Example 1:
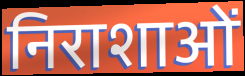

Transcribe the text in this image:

निराशाओं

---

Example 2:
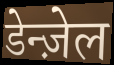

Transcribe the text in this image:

डेन्ज़ेल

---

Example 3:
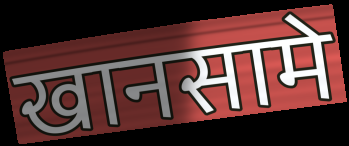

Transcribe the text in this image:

खानसामे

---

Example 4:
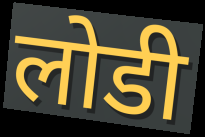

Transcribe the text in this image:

लोडी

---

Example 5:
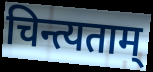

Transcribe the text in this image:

चिन्त्यताम्